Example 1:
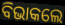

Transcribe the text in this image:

ବିଭାକଲେ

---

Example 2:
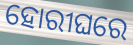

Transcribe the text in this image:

ହୋରୀଘରେ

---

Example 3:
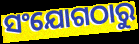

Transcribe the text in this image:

ସଂଯୋଗଠାରୁ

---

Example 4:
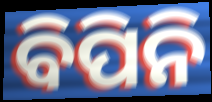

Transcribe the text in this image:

ବିପିନି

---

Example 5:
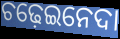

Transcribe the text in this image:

ଚଢ଼େଇନେଦା